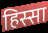
हिस्सा